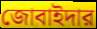
জোবাইদার